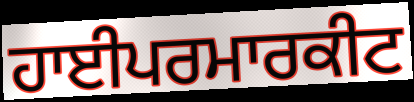
ਹਾਈਪਰਮਾਰਕੀਟ